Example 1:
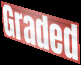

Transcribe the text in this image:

Graded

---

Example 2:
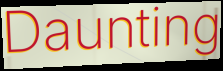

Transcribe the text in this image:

Daunting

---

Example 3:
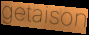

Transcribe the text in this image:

getaison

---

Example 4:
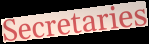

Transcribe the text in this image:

Secretaries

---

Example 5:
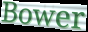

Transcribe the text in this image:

Bower